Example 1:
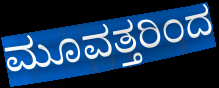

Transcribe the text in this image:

ಮೂವತ್ತರಿಂದ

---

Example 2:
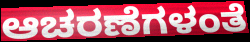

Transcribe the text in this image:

ಆಚರಣೆಗಳಂತೆ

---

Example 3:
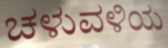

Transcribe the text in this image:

ಚಳುವಳಿಯ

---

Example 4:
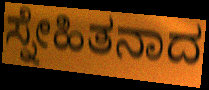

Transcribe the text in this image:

ಸ್ನೇಹಿತನಾದ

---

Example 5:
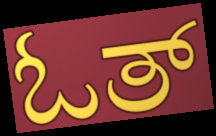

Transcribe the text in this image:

ಓತ್